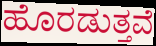
ಹೊರಡುತ್ತವೆ